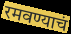
रमवण्याचं